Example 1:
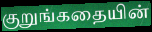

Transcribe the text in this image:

குறுங்கதையின்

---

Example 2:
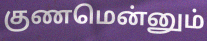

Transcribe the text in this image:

குணமென்னும்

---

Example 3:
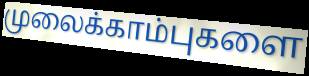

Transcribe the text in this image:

முலைக்காம்புகளை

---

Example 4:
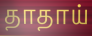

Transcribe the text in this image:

தாதாய்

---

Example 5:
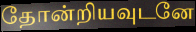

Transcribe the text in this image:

தோன்றியவுடனே